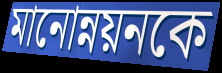
মানোন্নয়নকে